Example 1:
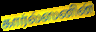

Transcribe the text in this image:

கார்ல்ஸனின்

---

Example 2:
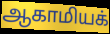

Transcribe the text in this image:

ஆகாமியக்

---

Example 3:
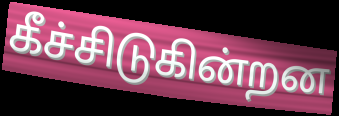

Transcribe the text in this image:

கீச்சிடுகின்றன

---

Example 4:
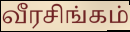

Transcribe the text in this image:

வீரசிங்கம்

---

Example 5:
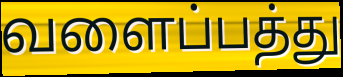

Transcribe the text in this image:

வளைப்பத்து